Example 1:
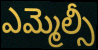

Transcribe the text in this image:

ఎమ్మెల్సీ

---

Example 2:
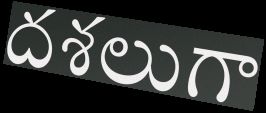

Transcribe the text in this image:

దశలుగా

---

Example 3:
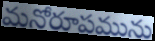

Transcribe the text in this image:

మనోరూపమును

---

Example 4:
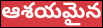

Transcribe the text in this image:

ఆశయమైన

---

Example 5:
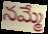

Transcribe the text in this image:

నమ్మే